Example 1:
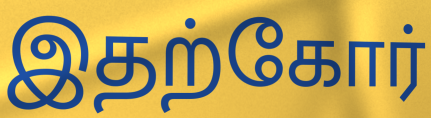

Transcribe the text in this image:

இதற்கோர்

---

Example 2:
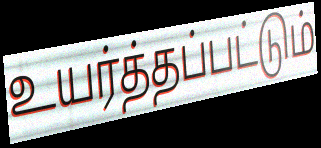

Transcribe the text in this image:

உயர்த்தப்பட்டும்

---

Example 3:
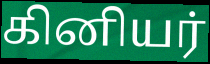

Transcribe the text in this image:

கினியர்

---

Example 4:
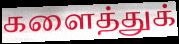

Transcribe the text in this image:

களைத்துக்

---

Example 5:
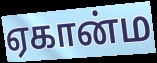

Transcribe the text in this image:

ஏகான்ம